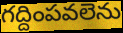
గద్దింపవలెను